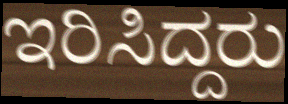
ಇರಿಸಿದ್ದರು